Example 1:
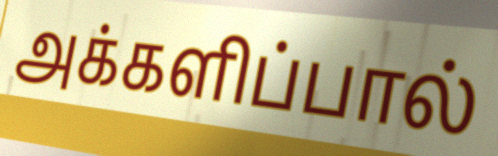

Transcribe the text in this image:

அக்களிப்பால்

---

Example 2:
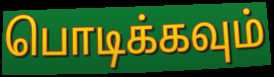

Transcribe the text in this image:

பொடிக்கவும்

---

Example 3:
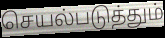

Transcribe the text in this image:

செயல்படுத்தும்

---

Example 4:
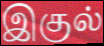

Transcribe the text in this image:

இகுல்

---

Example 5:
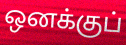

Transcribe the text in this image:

ஒனக்குப்